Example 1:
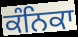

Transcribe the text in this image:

ਕੰਨਿਕਾ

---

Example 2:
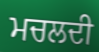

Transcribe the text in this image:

ਮਚਲਦੀ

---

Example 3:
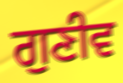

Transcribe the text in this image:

ਗੁਣੀਵ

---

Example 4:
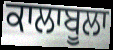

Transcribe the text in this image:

ਕਾਲਾਬੂਲਾ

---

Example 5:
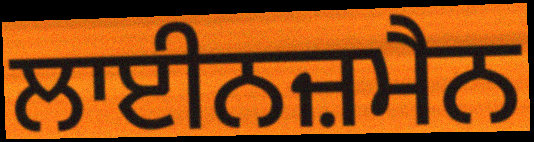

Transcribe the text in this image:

ਲਾਈਨਜ਼ਮੈਨ